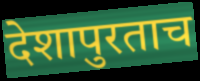
देशापुरताच